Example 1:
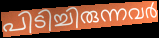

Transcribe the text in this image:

പിടിച്ചിരുന്നവർ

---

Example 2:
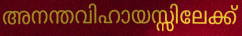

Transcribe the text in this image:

അനന്തവിഹായസ്സിലേക്ക്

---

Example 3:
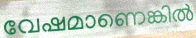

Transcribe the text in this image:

വേഷമാണെങ്കിൽ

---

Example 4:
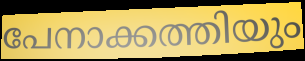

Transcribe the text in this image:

പേനാക്കത്തിയും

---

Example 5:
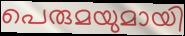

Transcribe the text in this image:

പെരുമയുമായി